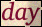
day